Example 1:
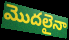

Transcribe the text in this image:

మొదలైనా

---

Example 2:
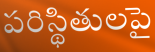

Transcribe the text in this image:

పరిస్థితులపై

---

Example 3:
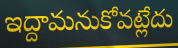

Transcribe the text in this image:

ఇద్దామనుకోవట్లేదు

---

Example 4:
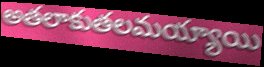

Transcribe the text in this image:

అతలాకుతలమయ్యాయి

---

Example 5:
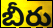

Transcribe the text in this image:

బీరు